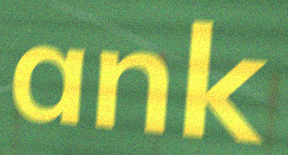
ank